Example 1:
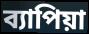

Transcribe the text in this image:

ব্যাপিয়া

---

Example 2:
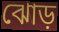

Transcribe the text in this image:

ঝোড়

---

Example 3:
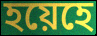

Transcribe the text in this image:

হয়েহে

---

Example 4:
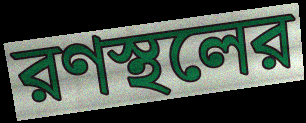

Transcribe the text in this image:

রণস্থলের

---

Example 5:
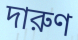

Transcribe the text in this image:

দারুণ